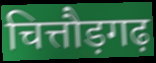
चित्तौड़गढ़